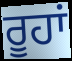
ਰੂਹਾਂ